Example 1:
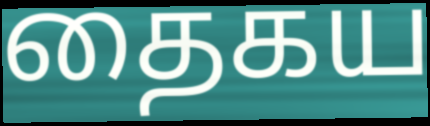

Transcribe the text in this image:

தைகய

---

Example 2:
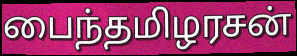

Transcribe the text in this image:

பைந்தமிழரசன்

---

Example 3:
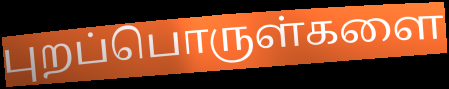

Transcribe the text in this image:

புறப்பொருள்களை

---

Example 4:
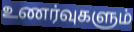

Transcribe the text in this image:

உணர்வுகளும்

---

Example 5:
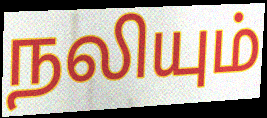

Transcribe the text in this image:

நலியும்